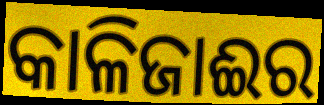
କାଳିଜାଈର